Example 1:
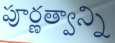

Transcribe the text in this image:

పూర్ణత్వాన్ని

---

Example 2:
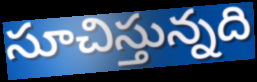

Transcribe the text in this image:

సూచిస్తున్నది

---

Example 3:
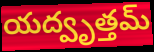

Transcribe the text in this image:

యద్వృత్తమ్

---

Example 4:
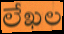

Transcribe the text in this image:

లేఖల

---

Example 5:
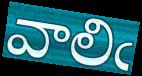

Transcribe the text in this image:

వాలిఁ